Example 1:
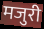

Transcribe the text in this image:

मजुरी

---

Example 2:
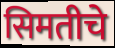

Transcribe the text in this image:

सिमतीचे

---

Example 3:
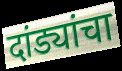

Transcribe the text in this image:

दांड्यांचा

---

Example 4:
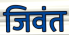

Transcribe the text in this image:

जिवंत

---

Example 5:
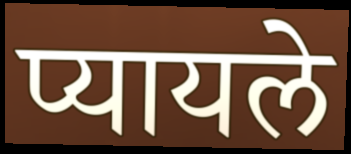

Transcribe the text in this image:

प्यायले